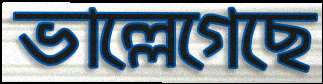
ভাল্লেগেছে